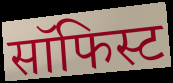
सॉफिस्ट